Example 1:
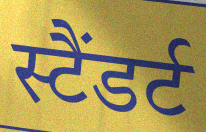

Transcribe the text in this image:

स्टैंडर्ट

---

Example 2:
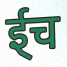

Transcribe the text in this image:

ई्च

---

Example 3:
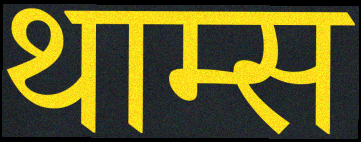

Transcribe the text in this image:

थाम्स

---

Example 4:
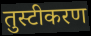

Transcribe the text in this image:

तुस्टीकरण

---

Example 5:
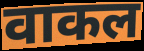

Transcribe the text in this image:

वाकल